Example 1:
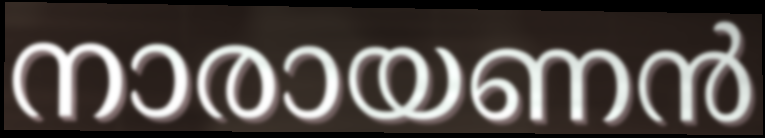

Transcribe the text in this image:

നാരായണൻ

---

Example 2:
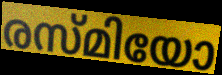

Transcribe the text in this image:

രസ്മിയോ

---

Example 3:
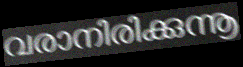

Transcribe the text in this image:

വരാനിരിക്കുന്നൂ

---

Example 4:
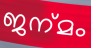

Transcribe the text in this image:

ജന്‌മം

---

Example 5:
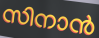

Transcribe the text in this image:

സിനാൻ